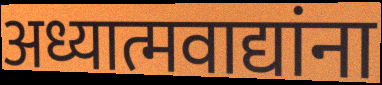
अध्यात्मवाद्यांना